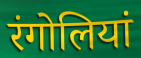
रंगोलियां